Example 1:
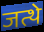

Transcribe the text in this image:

जत्थे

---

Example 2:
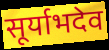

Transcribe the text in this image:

सूर्याभदेव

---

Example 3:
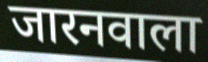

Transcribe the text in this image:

जारनवाला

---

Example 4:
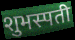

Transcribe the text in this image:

शुभस्पती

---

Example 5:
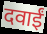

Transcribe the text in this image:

दवाईं